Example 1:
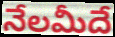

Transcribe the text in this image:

నేలమీదే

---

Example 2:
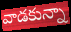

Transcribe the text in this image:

వాడకున్నా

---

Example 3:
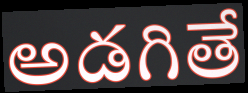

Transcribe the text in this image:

అడగితే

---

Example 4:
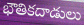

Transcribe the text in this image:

భౌతికదాడులు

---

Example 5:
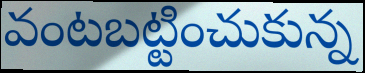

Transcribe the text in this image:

వంటబట్టించుకున్న